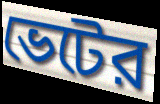
ভেটের